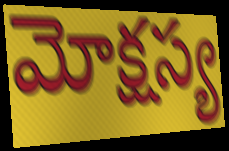
మోక్షస్య